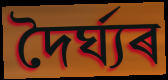
দৈৰ্ঘ্যৰ